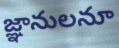
జ్ఞానులనూ